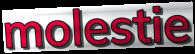
molestie